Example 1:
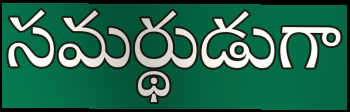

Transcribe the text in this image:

సమర్థుడుగా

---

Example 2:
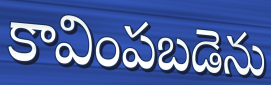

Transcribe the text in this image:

కావింపబడెను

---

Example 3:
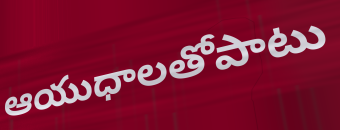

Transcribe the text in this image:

ఆయుధాలతోపాటు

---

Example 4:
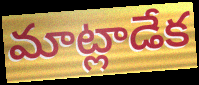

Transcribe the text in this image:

మాట్లాడేక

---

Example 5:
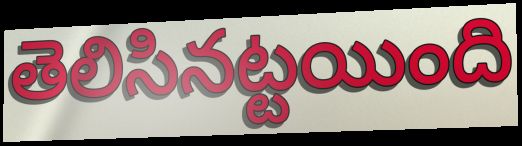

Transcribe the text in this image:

తెలిసినట్టయింది